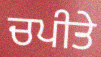
ਚਪੀਤੇ